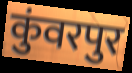
कुंवरपुर